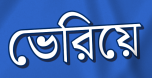
ভেরিয়ে